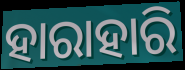
ହାରାହାରି